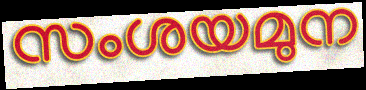
സംശയമുന